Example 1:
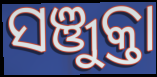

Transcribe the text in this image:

ସଞ୍ଜୁକ୍ତା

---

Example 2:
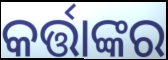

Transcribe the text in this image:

କର୍ତ୍ତାଙ୍କର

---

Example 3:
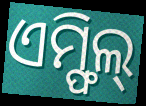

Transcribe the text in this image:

ଏମ୍ଫିଲ୍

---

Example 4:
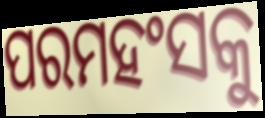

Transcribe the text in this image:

ପରମହଂସକୁ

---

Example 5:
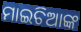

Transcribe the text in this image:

ମାଇଚିଆଙ୍କ